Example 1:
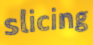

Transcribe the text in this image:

slicing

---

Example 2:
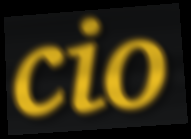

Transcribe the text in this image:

cio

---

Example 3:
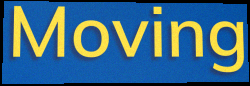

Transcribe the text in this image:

Moving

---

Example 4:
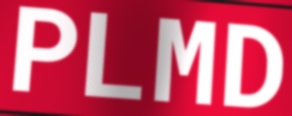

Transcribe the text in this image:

PLMD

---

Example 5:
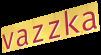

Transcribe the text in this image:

vazzka